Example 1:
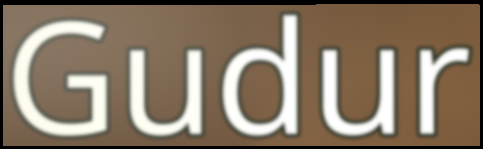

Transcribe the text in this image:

Gudur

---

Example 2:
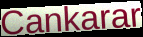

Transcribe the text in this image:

Cankarar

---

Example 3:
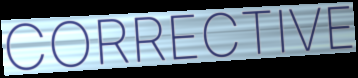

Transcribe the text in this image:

CORRECTIVE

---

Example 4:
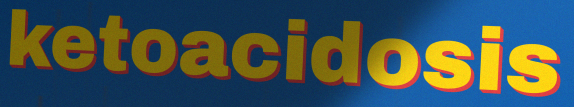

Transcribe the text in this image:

ketoacidosis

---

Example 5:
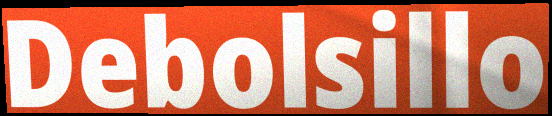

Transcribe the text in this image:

Debolsillo